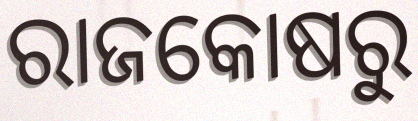
ରାଜକୋଷରୁ